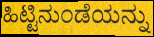
ಹಿಟ್ಟಿನುಂಡೆಯನ್ನು